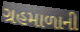
ગ્રહમાળાની